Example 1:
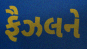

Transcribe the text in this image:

ફૈઝલને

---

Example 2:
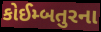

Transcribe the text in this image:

કોઈમ્બતુરના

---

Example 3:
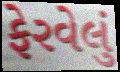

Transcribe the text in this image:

ફેરવેલું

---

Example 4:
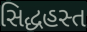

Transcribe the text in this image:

સિદ્ધહસ્ત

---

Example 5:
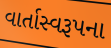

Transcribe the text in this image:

વાર્તાસ્વરૂપના